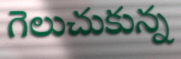
గెలుచుకున్న